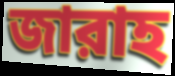
জারাহ